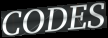
CODES